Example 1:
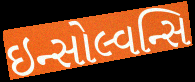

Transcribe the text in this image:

ઇન્સોલ્વન્સિ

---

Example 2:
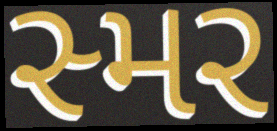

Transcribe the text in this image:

સ્મર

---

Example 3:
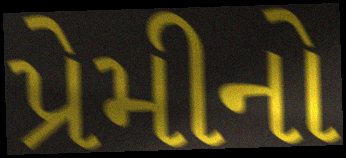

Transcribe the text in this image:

પ્રેમીનો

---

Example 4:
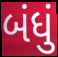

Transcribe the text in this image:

બંધું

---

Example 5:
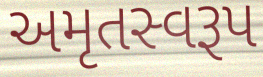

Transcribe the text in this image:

અમૃતસ્વરૂપ